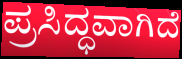
ಪ್ರಸಿದ್ಧವಾಗಿದೆ